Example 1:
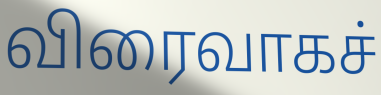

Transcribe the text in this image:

விரைவாகச்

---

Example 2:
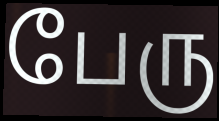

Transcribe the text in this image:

பேரு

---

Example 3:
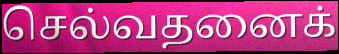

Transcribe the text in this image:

செல்வதனைக்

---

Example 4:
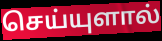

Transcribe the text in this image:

செய்யுளால்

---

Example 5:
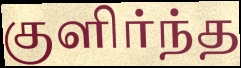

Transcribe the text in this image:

குளிர்ந்த